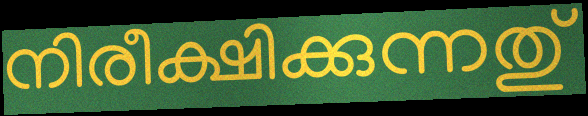
നിരീക്ഷിക്കുന്നതു്